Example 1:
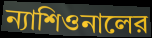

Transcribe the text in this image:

ন্যাশিওনালের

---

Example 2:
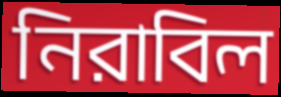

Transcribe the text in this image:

নিরাবিল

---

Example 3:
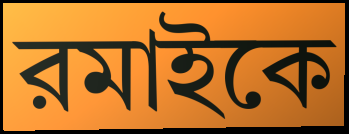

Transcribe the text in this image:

রমাইকে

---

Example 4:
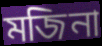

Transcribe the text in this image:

মজিনা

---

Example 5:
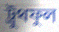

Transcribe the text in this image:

ট্রুথফুল